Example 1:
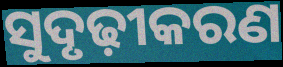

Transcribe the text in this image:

ସୁଦୃଢ଼ୀକରଣ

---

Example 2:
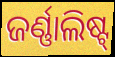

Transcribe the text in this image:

ଜର୍ଣ୍ଣାଲିଷ୍ଟ୍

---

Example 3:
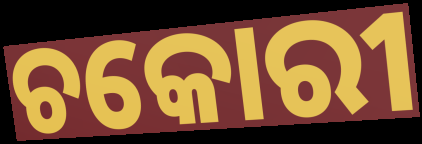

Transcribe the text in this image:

ଚକୋରୀ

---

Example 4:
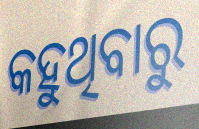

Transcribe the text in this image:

କହୁଥିବାରୁ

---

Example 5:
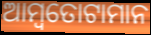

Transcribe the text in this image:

ଆମ୍ବତୋଟାମାନ